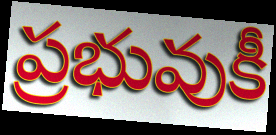
ప్రభువుకీ